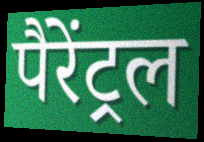
पैरेंट्रल